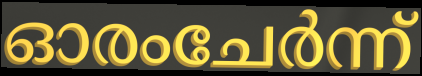
ഓരംചേർന്ന്